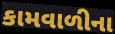
કામવાળીના